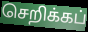
செறிக்கப்